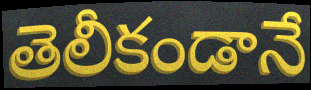
తెలీకండానే